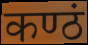
कण्ठं